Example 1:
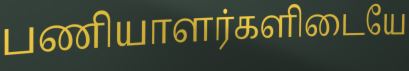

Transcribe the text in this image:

பணியாளர்களிடையே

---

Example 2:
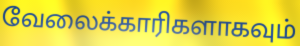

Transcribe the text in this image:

வேலைக்காரிகளாகவும்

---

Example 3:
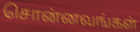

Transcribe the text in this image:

சொன்னவங்கள்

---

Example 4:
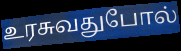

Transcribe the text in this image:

உரசுவதுபோல்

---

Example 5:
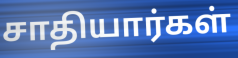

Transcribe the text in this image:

சாதியார்கள்